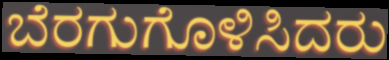
ಬೆರಗುಗೊಳಿಸಿದರು